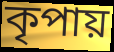
কৃপায়